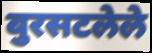
बुरसटलेले